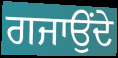
ਗਜਾਉਂਦੇ